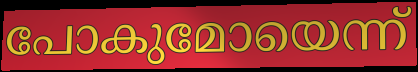
പോകുമോയെന്ന്